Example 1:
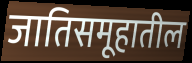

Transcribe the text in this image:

जातिसमूहातील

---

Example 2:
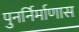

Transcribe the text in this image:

पुनर्निर्माणास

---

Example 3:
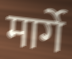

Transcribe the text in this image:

मार्गे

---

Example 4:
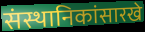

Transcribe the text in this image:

संस्थानिकांसारखे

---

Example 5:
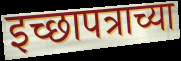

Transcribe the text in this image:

इच्छापत्राच्या